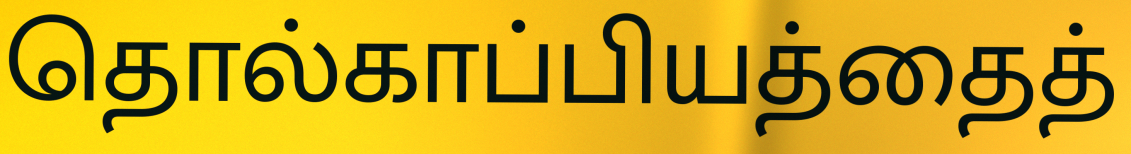
தொல்காப்பியத்தைத்